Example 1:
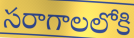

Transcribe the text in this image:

సరాగాలలోకి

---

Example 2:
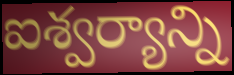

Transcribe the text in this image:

ఐశ్వర్యాన్ని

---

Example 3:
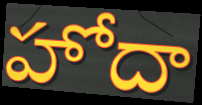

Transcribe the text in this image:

హోదా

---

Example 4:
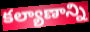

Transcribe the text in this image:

కల్యాణాన్ని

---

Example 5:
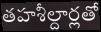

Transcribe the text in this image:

తహశీల్దార్లతో